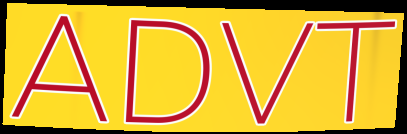
ADVT